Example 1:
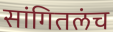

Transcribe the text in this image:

सांगितलंच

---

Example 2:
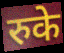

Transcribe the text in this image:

रुके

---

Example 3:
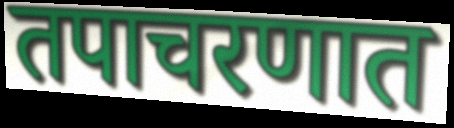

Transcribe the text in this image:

तपाचरणात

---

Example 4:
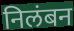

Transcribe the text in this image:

निलंबन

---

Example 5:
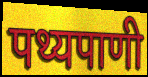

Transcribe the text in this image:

पथ्यपाणी